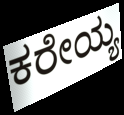
ಕರೇಯ್ಯ